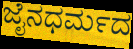
ಜೈನಧರ್ಮದ